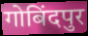
गोबिंदपुर